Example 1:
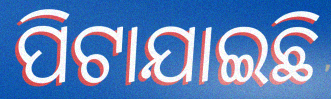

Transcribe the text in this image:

ପିଟାଯାଇଛି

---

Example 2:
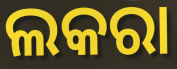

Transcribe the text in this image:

ଲକରା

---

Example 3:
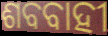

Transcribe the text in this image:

ଶବବାହୀ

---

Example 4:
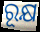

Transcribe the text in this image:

ରୂକ୍ଷ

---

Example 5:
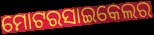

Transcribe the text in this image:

ମୋଟରସାଇକେଲର